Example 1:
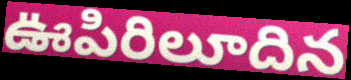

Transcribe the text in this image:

ఊపిరిలూదిన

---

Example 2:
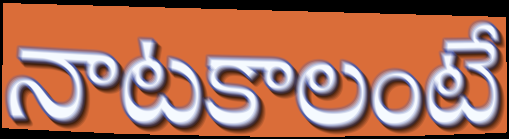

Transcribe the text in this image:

నాటకాలంటే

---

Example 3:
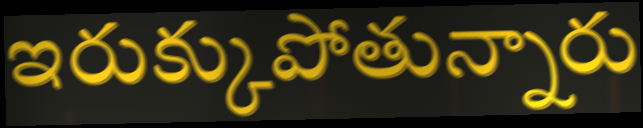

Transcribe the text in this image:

ఇరుక్కుపోతున్నారు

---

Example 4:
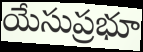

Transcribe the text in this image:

యేసుప్రభూ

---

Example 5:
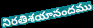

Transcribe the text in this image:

నిరతిశయానందము